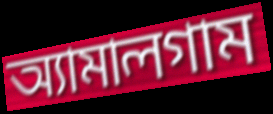
অ্যামালগাম